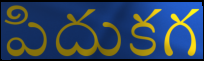
పిదుకగ